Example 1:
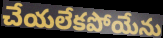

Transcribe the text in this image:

చేయలేకపోయేను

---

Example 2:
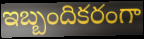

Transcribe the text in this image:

ఇబ్బందికరంగా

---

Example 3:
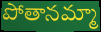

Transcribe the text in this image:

పోతానమ్మా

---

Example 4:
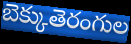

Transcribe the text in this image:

బెక్కుతెరంగుల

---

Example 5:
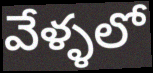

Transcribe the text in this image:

వేళ్ళలో